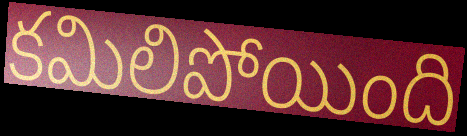
కమిలిపోయింది